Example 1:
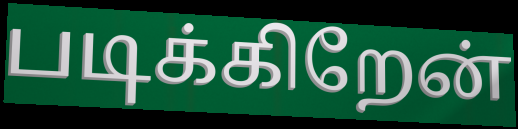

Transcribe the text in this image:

படிக்கிறேன்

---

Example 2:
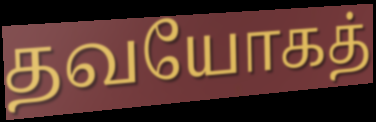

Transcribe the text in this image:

தவயோகத்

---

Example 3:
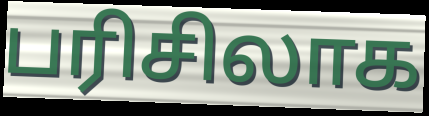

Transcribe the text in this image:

பரிசிலாக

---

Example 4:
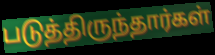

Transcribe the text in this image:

படுத்திருந்தார்கள்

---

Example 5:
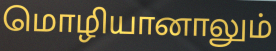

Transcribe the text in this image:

மொழியானாலும்